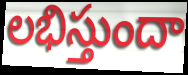
లభిస్తుందా